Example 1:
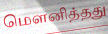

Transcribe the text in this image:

மௌனித்தது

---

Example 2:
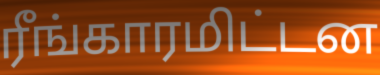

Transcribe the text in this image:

ரீங்காரமிட்டன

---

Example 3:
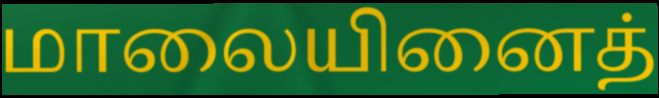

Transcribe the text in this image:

மாலையினைத்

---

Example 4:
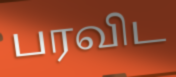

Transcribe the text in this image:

பரவிட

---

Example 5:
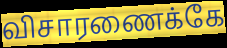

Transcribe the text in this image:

விசாரணைக்கே